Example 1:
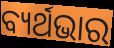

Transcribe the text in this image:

ବ୍ୟର୍ଥଭାର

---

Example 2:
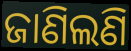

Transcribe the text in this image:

ଜାଣିଲଣି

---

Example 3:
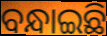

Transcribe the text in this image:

ବନ୍ଧାଇଛି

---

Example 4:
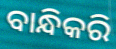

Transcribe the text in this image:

ବାନ୍ଧିକରି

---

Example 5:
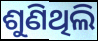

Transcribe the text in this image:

ଶୁଣିଥିଲି